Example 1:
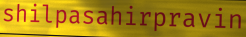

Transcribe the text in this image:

shilpasahirpravin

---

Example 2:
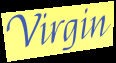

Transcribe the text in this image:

Virgin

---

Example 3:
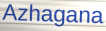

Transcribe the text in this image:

Azhagana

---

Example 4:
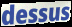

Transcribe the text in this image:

dessus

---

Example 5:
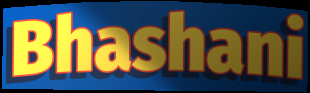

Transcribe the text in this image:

Bhashani